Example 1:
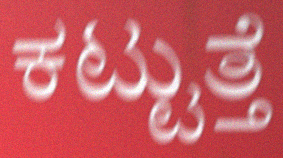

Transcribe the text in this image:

ಕಟ್ಟುತ್ತೆ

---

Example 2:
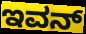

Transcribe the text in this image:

ಇವನ್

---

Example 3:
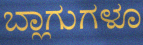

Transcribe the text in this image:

ಬ್ಲಾಗುಗಳೂ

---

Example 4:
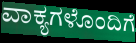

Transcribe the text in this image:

ವಾಕ್ಯಗಳೊಂದಿಗೆ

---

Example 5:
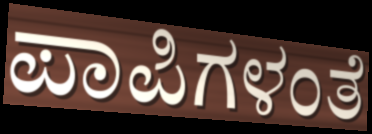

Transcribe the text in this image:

ಪಾಪಿಗಳಂತೆ